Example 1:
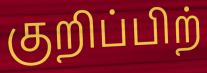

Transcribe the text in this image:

குறிப்பிற்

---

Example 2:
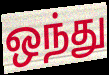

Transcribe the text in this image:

ஒந்து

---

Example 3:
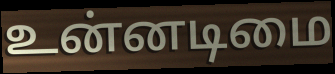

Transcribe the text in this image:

உன்னடிமை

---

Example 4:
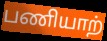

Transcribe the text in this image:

பணியாற்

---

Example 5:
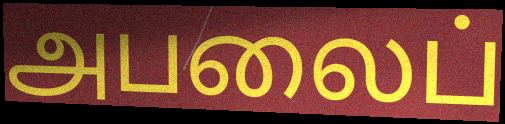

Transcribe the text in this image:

அபலைப்